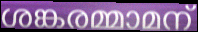
ശങ്കരമ്മാമന്